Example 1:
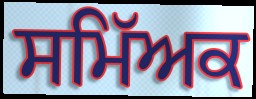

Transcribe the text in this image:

ਸਮਿੱਅਕ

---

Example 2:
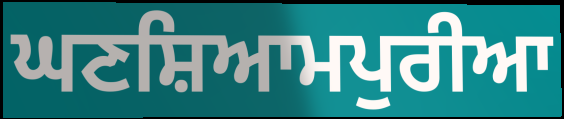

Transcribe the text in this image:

ਘਣਸ਼ਿਆਮਪੁਰੀਆ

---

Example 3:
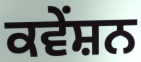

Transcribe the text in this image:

ਕਵੇਂਸ਼ਨ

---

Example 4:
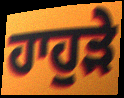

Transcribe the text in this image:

ਹਾਹੁੜੇ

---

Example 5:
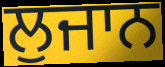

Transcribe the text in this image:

ਲੁਜਾਨ